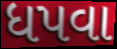
ધપવા